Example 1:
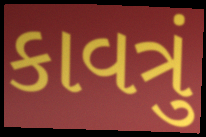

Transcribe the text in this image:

કાવત્રું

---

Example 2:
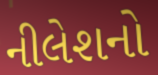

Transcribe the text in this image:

નીલેશનો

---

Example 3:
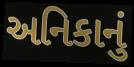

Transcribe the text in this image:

અનિકાનું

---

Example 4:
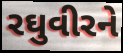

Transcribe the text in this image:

રઘુવીરને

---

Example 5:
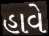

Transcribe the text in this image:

હાવે